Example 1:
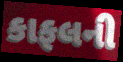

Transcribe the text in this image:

કાફલની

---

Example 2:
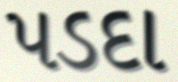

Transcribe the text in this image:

પડદા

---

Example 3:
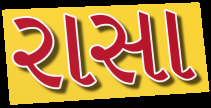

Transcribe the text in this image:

રાસા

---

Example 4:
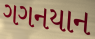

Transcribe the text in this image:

ગગનયાન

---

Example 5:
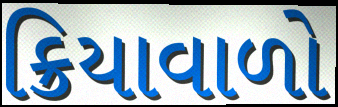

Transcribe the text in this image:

ક્રિયાવાળો